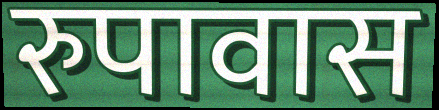
रुपावास